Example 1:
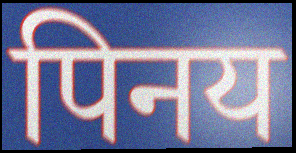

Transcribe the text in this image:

पिनय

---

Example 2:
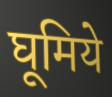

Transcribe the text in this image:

घूमिये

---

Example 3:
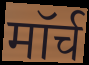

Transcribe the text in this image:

मॉर्च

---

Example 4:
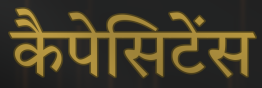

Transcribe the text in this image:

कैपेसिटेंस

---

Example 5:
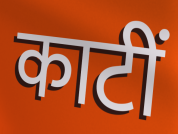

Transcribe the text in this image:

काटीं